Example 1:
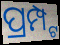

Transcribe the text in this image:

ପ୍ରମ୍ପ୍ଟ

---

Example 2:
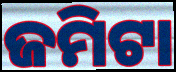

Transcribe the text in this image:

ଜମିଟା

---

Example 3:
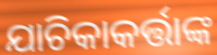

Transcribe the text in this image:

ଯାଚିକାକର୍ତ୍ତାଙ୍କ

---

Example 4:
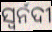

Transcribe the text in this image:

ସ୍ୱର୍ନଦୀ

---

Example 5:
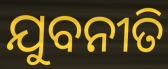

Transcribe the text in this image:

ଯୁବନୀତି